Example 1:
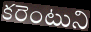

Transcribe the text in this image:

కరెంటుని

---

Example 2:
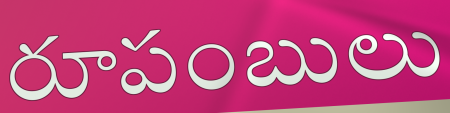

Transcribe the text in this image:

రూపంబులు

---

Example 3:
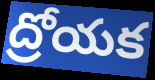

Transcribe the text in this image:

ద్రోయక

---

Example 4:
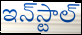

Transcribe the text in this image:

ఇన్‌స్టాల్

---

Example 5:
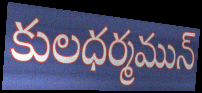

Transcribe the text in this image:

కులధర్మమున్